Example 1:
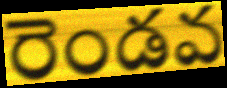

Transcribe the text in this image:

రెండవ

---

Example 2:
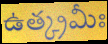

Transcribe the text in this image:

ఉత్క్రమీః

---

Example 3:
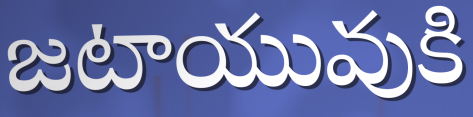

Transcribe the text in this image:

జటాయువుకి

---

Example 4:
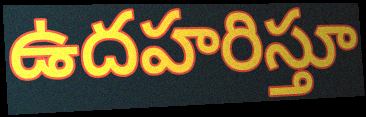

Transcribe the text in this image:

ఉదహరిస్తూ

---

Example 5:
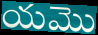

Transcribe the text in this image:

యమొ